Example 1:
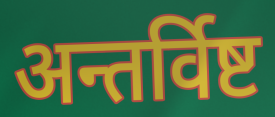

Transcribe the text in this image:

अन्तर्विष्ट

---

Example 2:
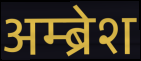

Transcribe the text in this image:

अम्ब्रेश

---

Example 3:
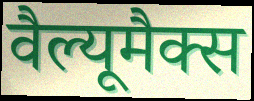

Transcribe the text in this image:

वैल्यूमैक्स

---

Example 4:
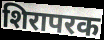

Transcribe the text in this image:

शिरापरक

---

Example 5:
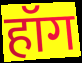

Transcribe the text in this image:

हॉग